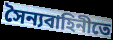
সৈন্যবাহিনীতে